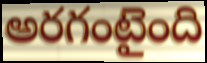
అరగంటైంది